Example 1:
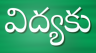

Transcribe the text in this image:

విద్యకు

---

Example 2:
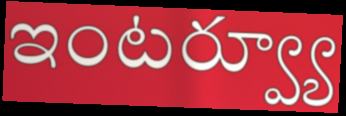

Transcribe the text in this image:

ఇంటర్వ్యూ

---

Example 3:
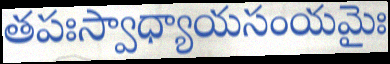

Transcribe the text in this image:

తపఃస్వాధ్యాయసంయమైః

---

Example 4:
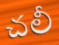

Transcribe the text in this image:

చలీ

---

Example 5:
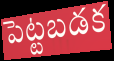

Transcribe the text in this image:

పెట్టబడక